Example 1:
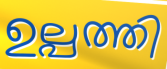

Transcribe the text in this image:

ഉല്പത്തി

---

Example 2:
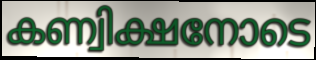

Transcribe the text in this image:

കണ്വിക്ഷനോടെ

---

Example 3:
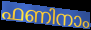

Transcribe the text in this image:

ഫണിനാം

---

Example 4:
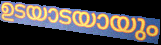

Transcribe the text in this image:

ഉടയാടയായും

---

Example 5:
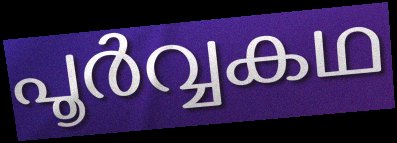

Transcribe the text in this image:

പൂർവ്വകഥ